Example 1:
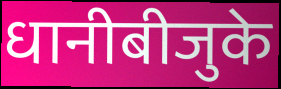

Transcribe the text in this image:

धानीबीजुके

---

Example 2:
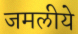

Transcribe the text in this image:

जमलीये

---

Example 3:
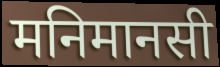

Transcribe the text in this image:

मनिमानसी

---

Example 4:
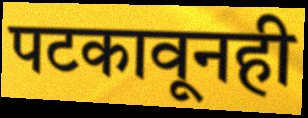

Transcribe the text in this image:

पटकावूनही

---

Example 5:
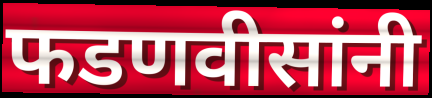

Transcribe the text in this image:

फडणवीसांनी